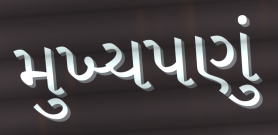
મુખ્યપણું